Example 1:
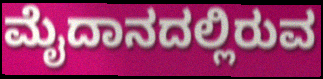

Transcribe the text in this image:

ಮೈದಾನದಲ್ಲಿರುವ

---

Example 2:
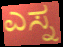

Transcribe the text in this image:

ಎಸ್ನ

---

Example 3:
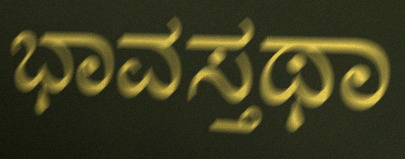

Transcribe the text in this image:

ಭಾವಸ್ತಥಾ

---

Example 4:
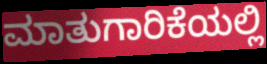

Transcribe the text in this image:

ಮಾತುಗಾರಿಕೆಯಲ್ಲಿ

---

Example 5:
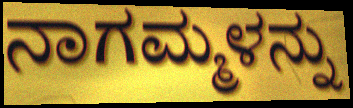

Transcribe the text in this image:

ನಾಗಮ್ಮಳನ್ನು